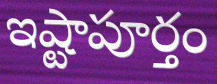
ఇష్టాపూర్తం